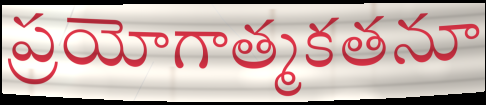
ప్రయోగాత్మకతనూ